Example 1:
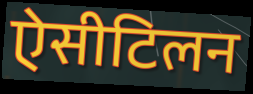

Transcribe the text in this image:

ऐसीटिलन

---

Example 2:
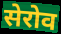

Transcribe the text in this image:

सेरोव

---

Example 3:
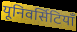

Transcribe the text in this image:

यूनिवर्सिटियाँ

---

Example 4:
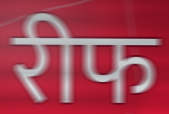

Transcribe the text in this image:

रीफ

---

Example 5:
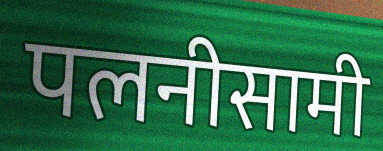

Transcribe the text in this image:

पलनीसामी